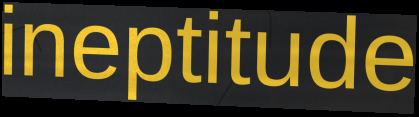
ineptitude